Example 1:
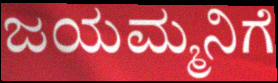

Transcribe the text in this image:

ಜಯಮ್ಮನಿಗೆ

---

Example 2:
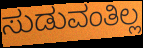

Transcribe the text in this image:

ಸುಡುವಂತಿಲ್ಲ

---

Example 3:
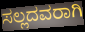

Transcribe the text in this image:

ಸಲ್ಲದವರಾಗಿ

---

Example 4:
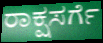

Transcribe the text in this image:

ರಾಕ್ಷಸರ್ಗೆ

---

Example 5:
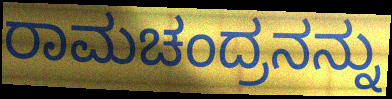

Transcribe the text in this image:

ರಾಮಚಂದ್ರನನ್ನು